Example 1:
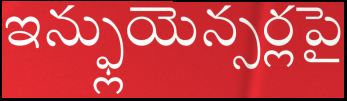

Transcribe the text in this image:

ఇన్ఫ్లుయెన్సర్లపై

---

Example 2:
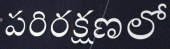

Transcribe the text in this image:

పరిరక్షణలో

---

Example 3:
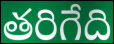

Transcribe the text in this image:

తరిగేది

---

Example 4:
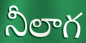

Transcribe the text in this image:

నీలాగ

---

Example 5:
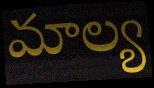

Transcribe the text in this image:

మాల్య